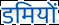
डमियों